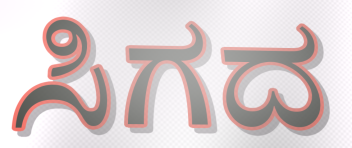
ಸಿಗದ